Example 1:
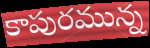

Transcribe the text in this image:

కాపురమున్న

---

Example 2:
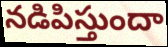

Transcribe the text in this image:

నడిపిస్తుందా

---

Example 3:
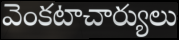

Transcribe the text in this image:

వెంకటాచార్యులు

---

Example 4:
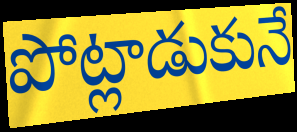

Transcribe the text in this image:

పోట్లాడుకునే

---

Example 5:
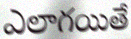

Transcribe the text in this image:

ఎలాగయితే